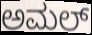
ಅಮಲ್